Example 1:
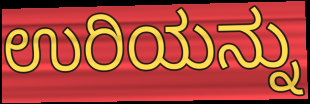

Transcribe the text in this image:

ಉರಿಯನ್ನು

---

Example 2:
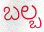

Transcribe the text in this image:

ಬಲ್ಬ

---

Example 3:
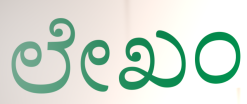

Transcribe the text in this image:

ಲೇಖಂ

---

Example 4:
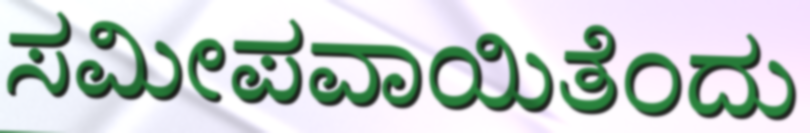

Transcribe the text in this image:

ಸಮೀಪವಾಯಿತೆಂದು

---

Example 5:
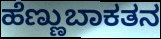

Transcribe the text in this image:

ಹೆಣ್ಣುಬಾಕತನ